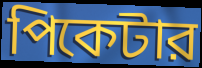
পিকেটার